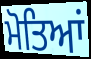
ਮੋਤਿਆਂ